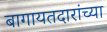
बागायतदारांच्या